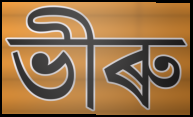
ভীৰু